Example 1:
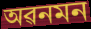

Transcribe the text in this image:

অৱনমন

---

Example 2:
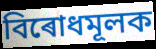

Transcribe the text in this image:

বিৰোধমূলক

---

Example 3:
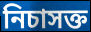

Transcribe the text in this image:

নিচাসক্ত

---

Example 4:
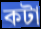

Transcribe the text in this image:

কটা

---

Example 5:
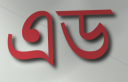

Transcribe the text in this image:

এড